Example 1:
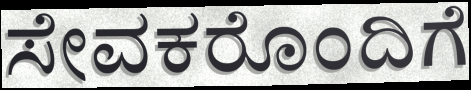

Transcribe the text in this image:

ಸೇವಕರೊಂದಿಗೆ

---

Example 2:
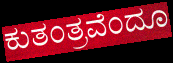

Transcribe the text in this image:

ಕುತಂತ್ರವೆಂದೂ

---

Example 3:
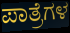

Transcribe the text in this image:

ಪಾತ್ರೆಗಳ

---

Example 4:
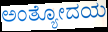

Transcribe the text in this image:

ಅಂತ್ಯೋದಯ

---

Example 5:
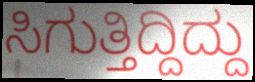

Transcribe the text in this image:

ಸಿಗುತ್ತಿದ್ದಿದ್ದು